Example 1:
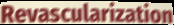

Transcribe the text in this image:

Revascularization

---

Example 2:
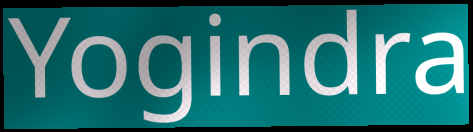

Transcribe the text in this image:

Yogindra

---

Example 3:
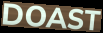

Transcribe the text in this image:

DOAST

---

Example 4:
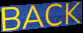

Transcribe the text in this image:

BACK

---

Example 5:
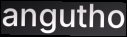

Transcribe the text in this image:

angutho